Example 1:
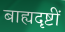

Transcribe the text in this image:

बाह्यदृष्टीं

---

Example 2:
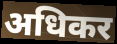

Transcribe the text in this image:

अधिकर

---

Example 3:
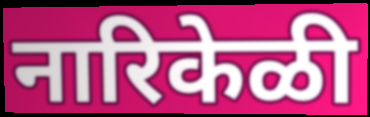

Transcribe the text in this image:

नारिकेळी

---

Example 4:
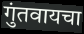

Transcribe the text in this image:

गुंतवायचा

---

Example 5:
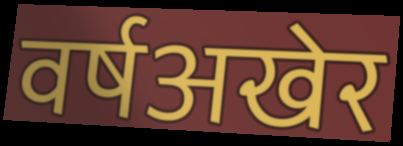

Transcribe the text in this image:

वर्षअखेर